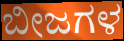
ಬೀಜಗಳ